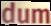
dum